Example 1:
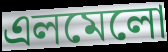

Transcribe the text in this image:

এলমেলো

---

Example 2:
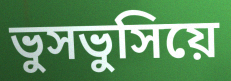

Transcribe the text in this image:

ভুসভুসিয়ে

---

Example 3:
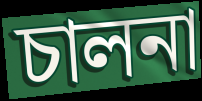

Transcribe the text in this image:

চালনা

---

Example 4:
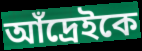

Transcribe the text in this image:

আঁদ্রেইকে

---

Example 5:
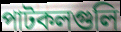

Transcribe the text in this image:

পাটকলগুলি